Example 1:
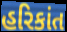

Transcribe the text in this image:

હરિકાંત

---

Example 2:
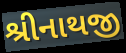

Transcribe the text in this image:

શ્રીનાથજી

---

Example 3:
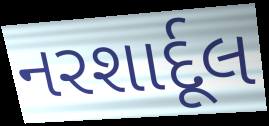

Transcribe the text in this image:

નરશાર્દૂલ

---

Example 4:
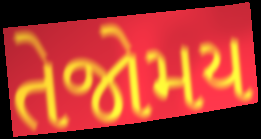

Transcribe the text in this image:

તેજોમય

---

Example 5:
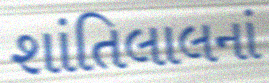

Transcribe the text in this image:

શાંતિલાલનાં